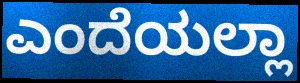
ಎಂದೆಯಲ್ಲಾ